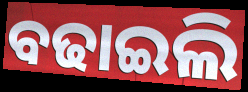
ବଢାଇଲି